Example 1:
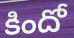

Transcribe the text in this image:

కిందో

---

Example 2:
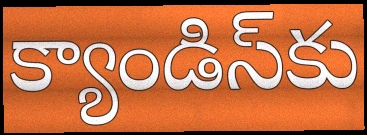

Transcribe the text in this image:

క్యాండిస్‌కు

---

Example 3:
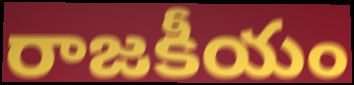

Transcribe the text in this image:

రాజకీయం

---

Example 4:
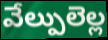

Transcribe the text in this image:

వేల్పులెల్ల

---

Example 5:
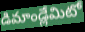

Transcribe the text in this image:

డిమాండ్లేమిటో